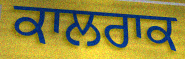
ਕਾਲਰਾਕ